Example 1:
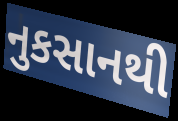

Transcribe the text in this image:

નુકસાનથી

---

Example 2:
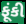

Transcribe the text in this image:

ફૂંકી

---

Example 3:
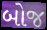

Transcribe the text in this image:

બોજ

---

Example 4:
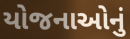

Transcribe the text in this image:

યોજનાઓનું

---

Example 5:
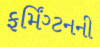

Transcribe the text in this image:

ફર્મિંગ્ટનની